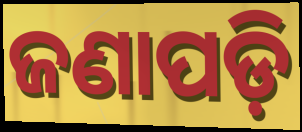
ଜଣାପଡ଼ି